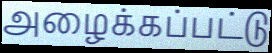
அழைக்கப்பட்டு